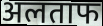
अलताफ